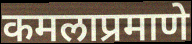
कमलाप्रमाणे